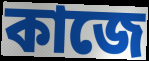
কাজে